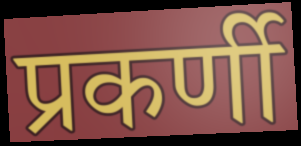
प्रकर्णी